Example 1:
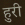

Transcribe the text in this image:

हुरी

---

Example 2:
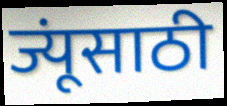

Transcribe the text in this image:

ज्यूंसाठी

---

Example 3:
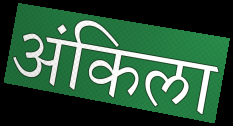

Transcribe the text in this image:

अंकिला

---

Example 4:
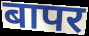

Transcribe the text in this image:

बापर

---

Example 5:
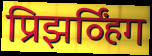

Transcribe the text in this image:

प्रिझर्व्हिंग